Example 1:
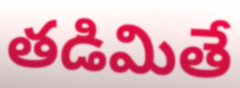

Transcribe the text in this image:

తడిమితే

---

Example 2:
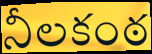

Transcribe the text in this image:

నీలకంఠ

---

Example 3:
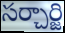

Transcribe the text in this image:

సర్చార్జి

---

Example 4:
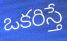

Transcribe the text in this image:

ఒకరిస్తే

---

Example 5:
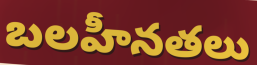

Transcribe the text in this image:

బలహీనతలు